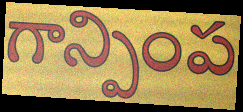
గాన్పింప